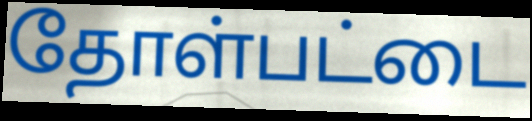
தோள்பட்டை